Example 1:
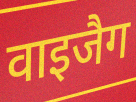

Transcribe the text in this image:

वाइजैग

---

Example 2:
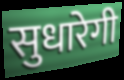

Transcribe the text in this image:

सुधारेगी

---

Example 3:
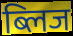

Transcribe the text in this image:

ब्लिज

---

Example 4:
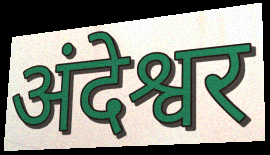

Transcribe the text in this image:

अंदेश्वर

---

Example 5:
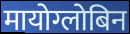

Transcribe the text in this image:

मायोग्लोबिन